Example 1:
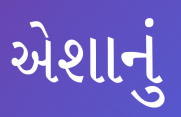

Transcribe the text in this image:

એશાનું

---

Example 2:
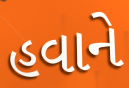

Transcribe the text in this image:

હવાને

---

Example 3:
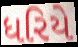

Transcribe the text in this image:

ધરિયે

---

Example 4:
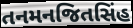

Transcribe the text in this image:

તનમનજિતસિંહ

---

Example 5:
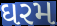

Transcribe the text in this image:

ઘરમ